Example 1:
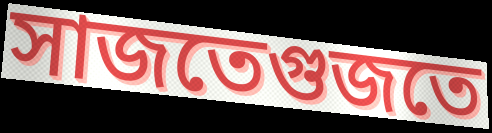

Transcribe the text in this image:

সাজতেগুজতে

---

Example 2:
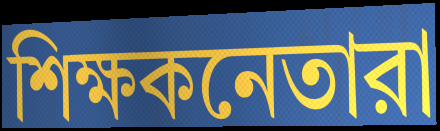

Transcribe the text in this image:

শিক্ষকনেতারা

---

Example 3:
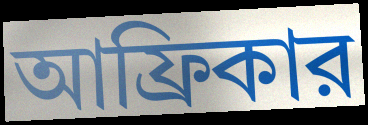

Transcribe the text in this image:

আফ্রিকার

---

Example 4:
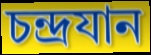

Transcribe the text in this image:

চন্দ্রযান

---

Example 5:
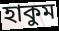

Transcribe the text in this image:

হাকুম